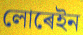
লোৰেইন